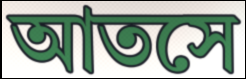
আতসে